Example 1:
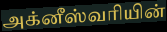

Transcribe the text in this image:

அக்னீஸ்வரியின்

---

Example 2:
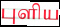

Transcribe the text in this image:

புளிய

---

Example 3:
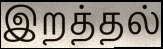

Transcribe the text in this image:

இறத்தல்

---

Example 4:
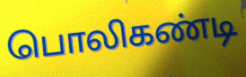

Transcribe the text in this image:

பொலிகண்டி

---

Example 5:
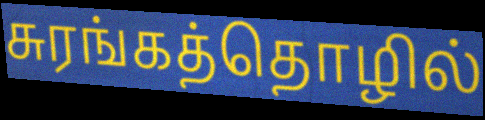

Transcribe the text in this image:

சுரங்கத்தொழில்